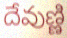
దేవుణ్ణి